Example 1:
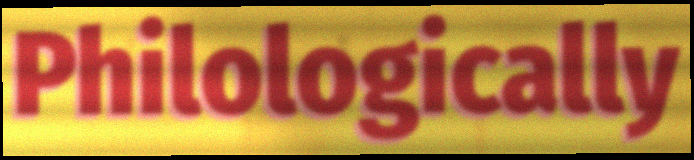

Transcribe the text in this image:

Philologically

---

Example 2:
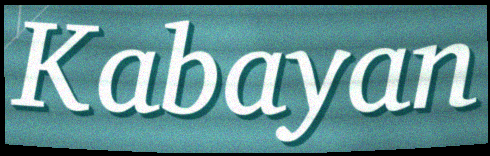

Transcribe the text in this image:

Kabayan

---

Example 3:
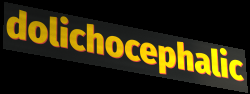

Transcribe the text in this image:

dolichocephalic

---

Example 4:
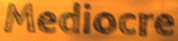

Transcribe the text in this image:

Mediocre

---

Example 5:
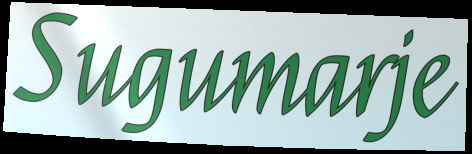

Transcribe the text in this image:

Sugumarje